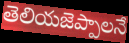
తెలియజెప్పాలనే